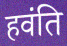
हवंति